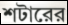
শটারের